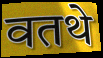
वतथे